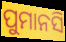
ପୁମାନସି